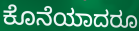
ಕೊನೆಯಾದರೂ